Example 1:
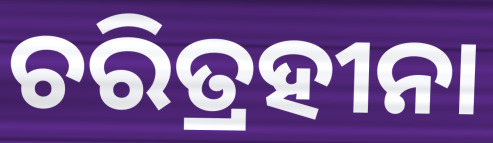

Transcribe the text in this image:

ଚରିତ୍ରହୀନା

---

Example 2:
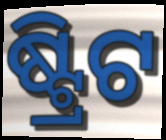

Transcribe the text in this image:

ଷ୍ଟ୍ରିଟ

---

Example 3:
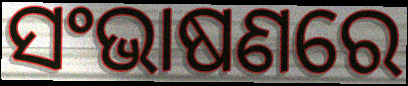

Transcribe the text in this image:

ସଂଭାଷଣରେ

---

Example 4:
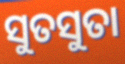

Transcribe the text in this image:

ସୁତସୁତା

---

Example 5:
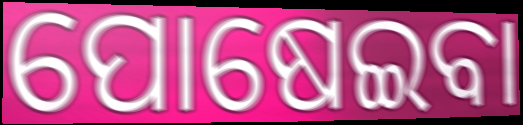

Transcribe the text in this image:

ପୋଷେଇବା